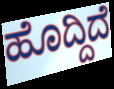
ಹೊದ್ದಿದೆ